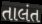
તાલંત